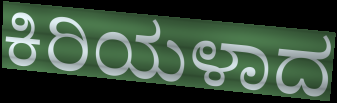
ಕಿರಿಯಳಾದ